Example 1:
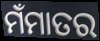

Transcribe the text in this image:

ମଁମାତର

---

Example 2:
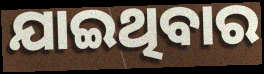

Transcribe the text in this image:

ଯାଇଥିବାର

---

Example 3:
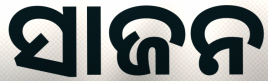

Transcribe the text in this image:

ସାଜନ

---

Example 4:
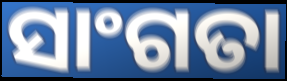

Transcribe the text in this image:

ସାଂଗତା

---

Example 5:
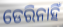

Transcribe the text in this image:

ଡେରିନାହିଁ